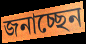
জনাচ্ছেন